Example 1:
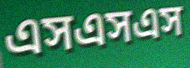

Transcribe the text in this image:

এসএসএস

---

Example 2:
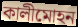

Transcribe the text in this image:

কালীমোহন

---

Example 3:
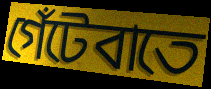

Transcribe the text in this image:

গেঁটেবাতে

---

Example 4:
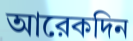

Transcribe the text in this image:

আরেকদিন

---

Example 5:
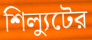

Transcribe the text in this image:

শিল্যুটের